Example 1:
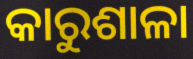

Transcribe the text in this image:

କାରୁଶାଳା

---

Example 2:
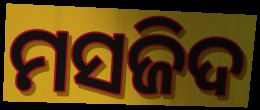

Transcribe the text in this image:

ମସଜିଦ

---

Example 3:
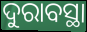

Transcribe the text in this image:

ଦୁରାବସ୍ଥା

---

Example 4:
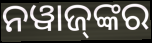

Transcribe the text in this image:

ନୱାଜ୍‍ଙ୍କର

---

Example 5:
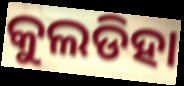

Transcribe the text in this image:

କୁଲଡିହା